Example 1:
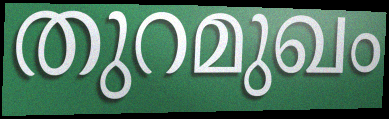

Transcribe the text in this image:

തുറമുഖം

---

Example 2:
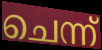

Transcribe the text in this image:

ചെന്ന്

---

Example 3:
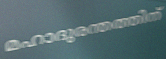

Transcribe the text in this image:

മഹാദുരന്തത്തിന്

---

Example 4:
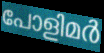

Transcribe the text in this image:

പോളിമർ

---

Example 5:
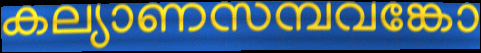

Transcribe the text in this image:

കല്യാണസമ്പവങ്കോ